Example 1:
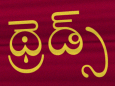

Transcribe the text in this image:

థ్రెడ్స్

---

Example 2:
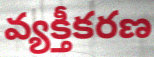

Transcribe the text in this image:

వ్యక్తీకరణ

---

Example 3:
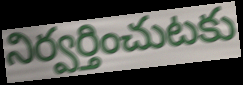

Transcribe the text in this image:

నిర్వర్తించుటకు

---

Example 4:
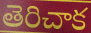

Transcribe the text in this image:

తెరిచాక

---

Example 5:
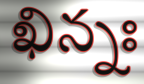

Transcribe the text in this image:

ఖిన్నః